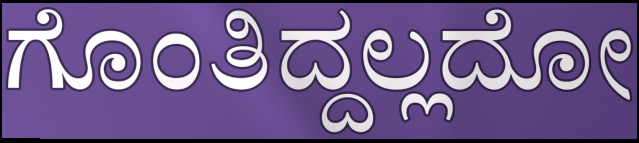
ಗೊಂತಿದ್ದಲ್ಲದೋ